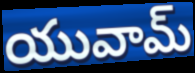
యువామ్